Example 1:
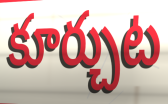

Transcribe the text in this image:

కూర్చుట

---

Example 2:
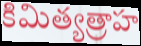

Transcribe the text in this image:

కిమిత్యత్రాహ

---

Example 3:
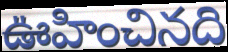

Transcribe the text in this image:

ఊహించినది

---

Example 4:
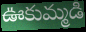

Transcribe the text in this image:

ఊకుమ్మడి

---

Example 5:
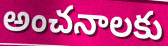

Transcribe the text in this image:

అంచనాలకు